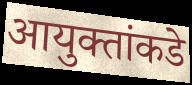
आयुक्तांकडे